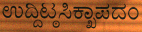
ಉದ್ದಿಟ್ಠಸಿಕ್ಖಾಪದಂ